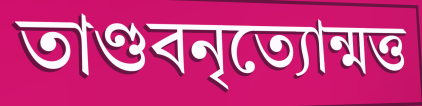
তাণ্ডবনৃত্যোন্মত্ত